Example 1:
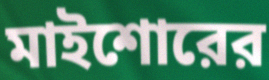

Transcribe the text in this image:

মাইশোরের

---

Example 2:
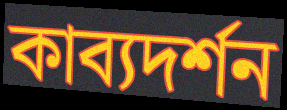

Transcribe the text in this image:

কাব্যদর্শন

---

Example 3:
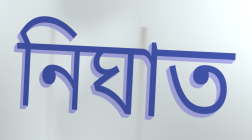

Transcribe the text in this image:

নিঘাত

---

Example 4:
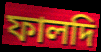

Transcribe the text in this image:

ফালদি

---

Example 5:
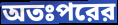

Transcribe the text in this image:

অতঃপরের